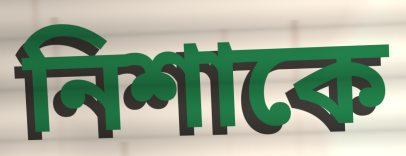
নিশাকে